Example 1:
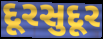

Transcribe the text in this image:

દૂરસુદૂર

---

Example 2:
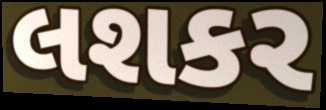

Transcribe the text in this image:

લશકર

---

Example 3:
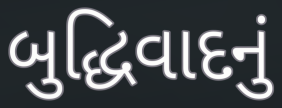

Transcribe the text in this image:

બુદ્ધિવાદનું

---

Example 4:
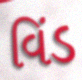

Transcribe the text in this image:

વિંડ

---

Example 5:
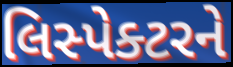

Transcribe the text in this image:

લિસ્પેક્ટરને